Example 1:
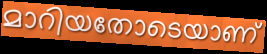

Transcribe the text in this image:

മാറിയതോടെയാണ്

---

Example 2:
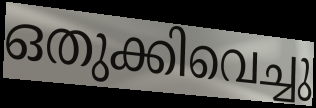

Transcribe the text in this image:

ഒതുക്കിവെച്ചു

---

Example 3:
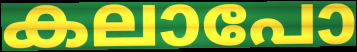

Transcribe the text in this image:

കലാപോ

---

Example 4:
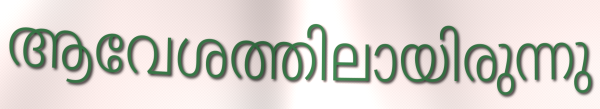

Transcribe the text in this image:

ആവേശത്തിലായിരുന്നു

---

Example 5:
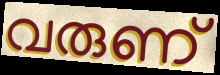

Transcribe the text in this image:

വരുണ്